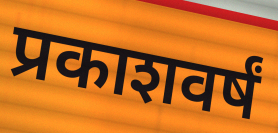
प्रकाशवर्षं